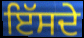
ਇੱਸਦੇ